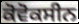
ਕੋਵੋਕਸੀਨ